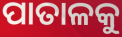
ପାତାଳକୁ